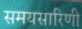
समयसारिणी